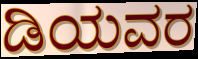
ಡಿಯವರ